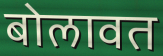
बोलावत